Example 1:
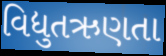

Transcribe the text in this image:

વિદ્યુતઋણતા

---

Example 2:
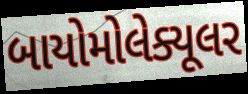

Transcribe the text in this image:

બાયોમોલેક્યૂલર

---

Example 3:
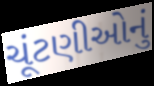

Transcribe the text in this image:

ચૂંટણીઓનું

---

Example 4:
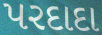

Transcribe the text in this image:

પરદાદા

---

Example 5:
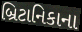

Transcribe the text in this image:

બ્રિટાનિકાના